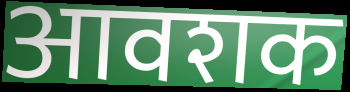
आवशक